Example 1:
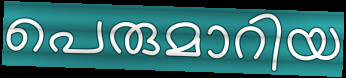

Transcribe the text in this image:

പെരുമാറിയ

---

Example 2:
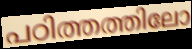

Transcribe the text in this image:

പഠിത്തത്തിലോ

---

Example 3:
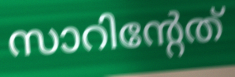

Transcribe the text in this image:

സാറിന്റേത്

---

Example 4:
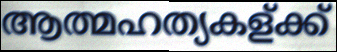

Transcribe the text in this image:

ആത്മഹത്യകള്ക്ക്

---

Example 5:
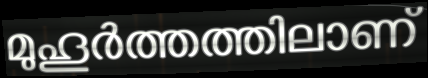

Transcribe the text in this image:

മുഹൂർത്തത്തിലാണ്